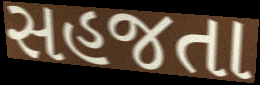
સહજતા